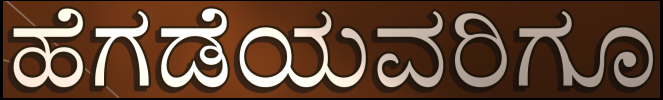
ಹೆಗಡೆಯವರಿಗೂ